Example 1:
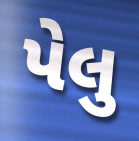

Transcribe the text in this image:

પેલુ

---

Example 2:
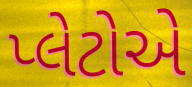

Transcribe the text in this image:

પ્લેટોએ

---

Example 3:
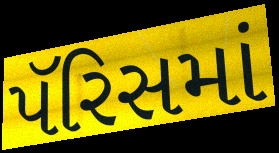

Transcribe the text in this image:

પૅરિસમાં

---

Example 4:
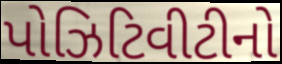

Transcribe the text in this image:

પોઝિટિવીટીનો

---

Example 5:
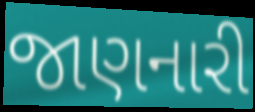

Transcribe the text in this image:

જાણનારી